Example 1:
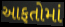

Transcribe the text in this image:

આફતોમાં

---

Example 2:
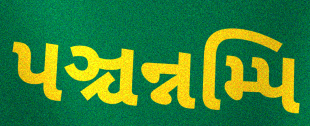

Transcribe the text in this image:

પઞ્ચન્નમ્પિ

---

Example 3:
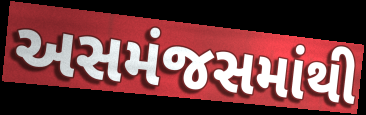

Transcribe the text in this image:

અસમંજસમાંથી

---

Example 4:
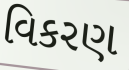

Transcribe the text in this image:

વિકરણ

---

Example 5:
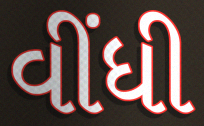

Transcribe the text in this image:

વીંધી